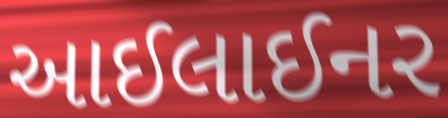
આઈલાઈનર